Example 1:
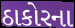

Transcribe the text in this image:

ઠાકોરના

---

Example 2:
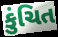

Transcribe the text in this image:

કુંચિત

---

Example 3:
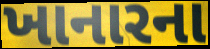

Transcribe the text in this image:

ખાનારના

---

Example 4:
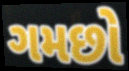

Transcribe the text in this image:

ગમછો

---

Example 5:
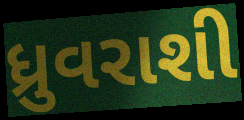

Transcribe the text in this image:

ધ્રુવરાશી